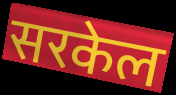
सरकेल